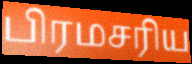
பிரமசரிய